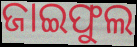
ଜାଇଫୁଲ